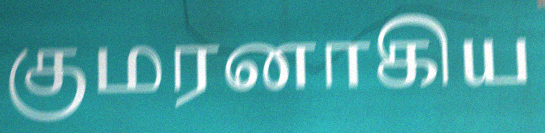
குமரனாகிய